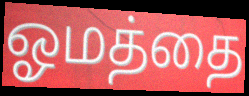
ஓமத்தை